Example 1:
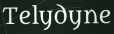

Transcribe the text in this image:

Telydyne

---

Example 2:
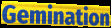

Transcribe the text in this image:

Gemination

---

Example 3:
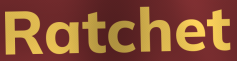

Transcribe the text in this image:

Ratchet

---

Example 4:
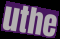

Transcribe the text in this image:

uthe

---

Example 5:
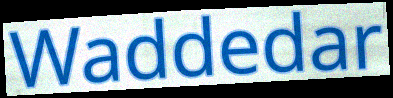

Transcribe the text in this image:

Waddedar